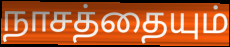
நாசத்தையும்